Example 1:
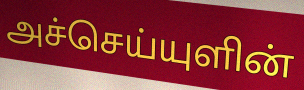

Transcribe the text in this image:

அச்செய்யுளின்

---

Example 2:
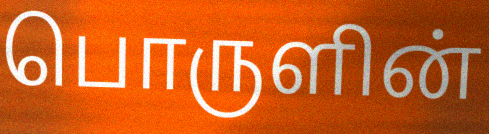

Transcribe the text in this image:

பொருளின்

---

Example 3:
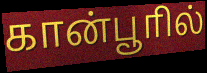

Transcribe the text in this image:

கான்பூரில்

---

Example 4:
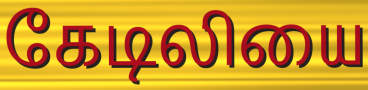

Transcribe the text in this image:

கேடிலியை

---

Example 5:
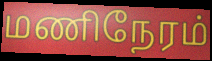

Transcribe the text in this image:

மணிநேரம்